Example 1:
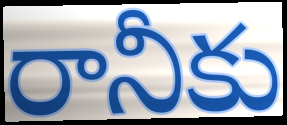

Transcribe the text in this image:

రానీకు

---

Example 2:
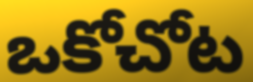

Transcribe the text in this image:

ఒకోచోట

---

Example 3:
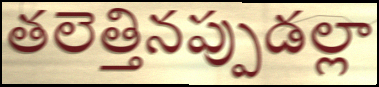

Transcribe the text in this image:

తలెత్తినప్పుడల్లా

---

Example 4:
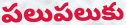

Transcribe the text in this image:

పలుపలుకు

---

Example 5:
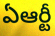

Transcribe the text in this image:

ఏఆర్టీ